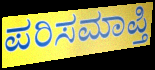
ಪರಿಸಮಾಪ್ತಿ